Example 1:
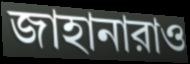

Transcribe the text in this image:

জাহানারাও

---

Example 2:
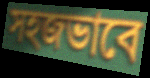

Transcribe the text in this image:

সহজভাবে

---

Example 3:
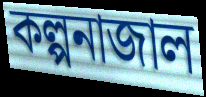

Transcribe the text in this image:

কল্পনাজাল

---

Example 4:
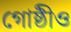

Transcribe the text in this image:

গোষ্ঠীও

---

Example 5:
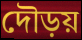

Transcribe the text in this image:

দৌড়য়